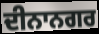
ਦੀਨਾਨਗਰ